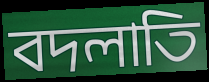
বদলাতি